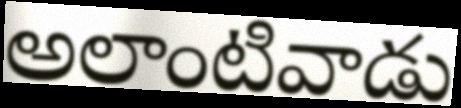
అలాంటివాడు